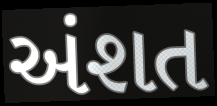
અંશત